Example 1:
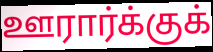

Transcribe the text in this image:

ஊரார்க்குக்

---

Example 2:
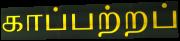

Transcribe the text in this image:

காப்பற்றப்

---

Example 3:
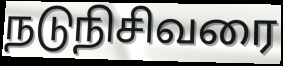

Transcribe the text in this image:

நடுநிசிவரை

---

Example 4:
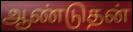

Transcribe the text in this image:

ஆண்டுதன்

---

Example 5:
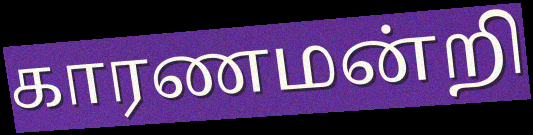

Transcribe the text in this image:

காரணமன்றி